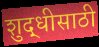
शुद्धीसाठी